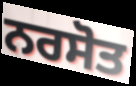
ਨਰਸੋਤ